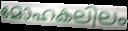
മോഹകലിലം